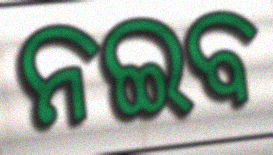
ନଇବ